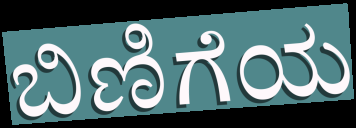
ಬಿಣಿಗೆಯ